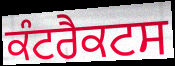
ਕੰਟਰੈਕਟਸ